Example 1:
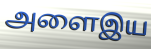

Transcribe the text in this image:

அளைஇய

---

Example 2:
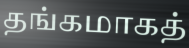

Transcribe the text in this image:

தங்கமாகத்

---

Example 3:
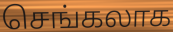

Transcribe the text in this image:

செங்கலாக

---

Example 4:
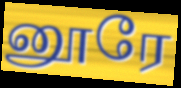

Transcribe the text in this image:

னூரே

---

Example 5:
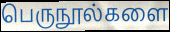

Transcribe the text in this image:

பெருநூல்களை